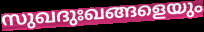
സുഖദുഃഖങ്ങളെയും